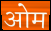
ओम